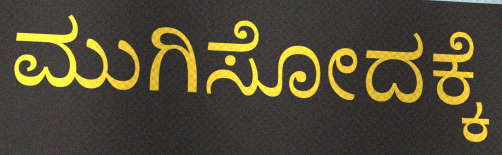
ಮುಗಿಸೋದಕ್ಕೆ